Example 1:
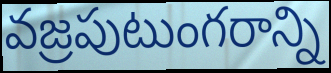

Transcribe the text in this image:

వజ్రపుటుంగరాన్ని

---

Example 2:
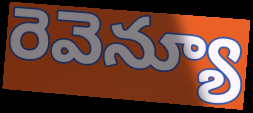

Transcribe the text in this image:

రెవెన్యూ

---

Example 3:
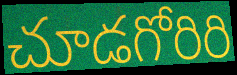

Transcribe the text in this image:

చూడగోరిరి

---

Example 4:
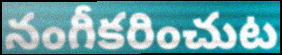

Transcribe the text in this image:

నంగీకరించుట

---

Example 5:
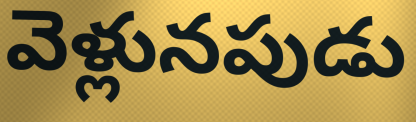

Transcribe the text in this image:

వెళ్లునపుడు